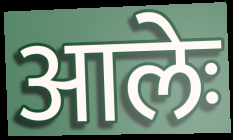
आलेः